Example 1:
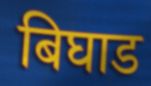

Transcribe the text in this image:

बिघाड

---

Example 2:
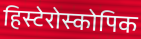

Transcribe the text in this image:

हिस्टेरोस्कोपिक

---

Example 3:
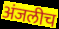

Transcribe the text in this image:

अंजलीच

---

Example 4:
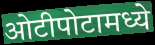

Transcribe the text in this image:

ओटीपोटामध्ये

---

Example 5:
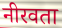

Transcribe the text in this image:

नीरवता